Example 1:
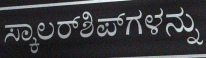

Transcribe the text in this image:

ಸ್ಕಾಲರ್‌ಶಿಪ್‌ಗಳನ್ನು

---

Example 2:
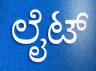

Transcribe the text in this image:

ಲೈಟ್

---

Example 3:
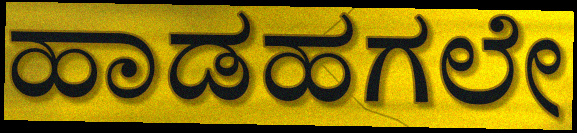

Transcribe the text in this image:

ಹಾಡಹಗಲೇ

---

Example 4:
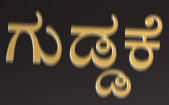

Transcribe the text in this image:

ಗುಡ್ಡಕೆ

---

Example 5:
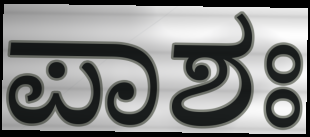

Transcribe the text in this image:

ಪಾಶಃ